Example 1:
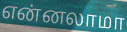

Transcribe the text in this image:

என்னலாமா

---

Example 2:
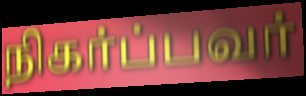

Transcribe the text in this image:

நிகர்ப்பவர்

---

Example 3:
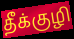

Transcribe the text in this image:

தீக்குழி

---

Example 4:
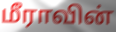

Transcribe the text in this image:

மீராவின்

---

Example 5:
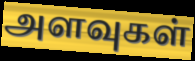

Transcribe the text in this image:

அளவுகள்